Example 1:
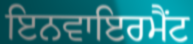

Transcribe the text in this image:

ਇਨਵਾਇਰਮੈਂਟ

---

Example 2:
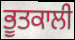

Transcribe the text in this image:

ਭੂਤਕਾਲੀ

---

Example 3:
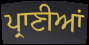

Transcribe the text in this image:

ਪ੍ਰਾਣੀਆਂ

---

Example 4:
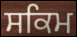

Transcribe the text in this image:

ਸਕਿਮ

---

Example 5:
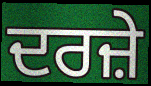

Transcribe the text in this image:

ਦਰਜ਼ੇ